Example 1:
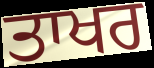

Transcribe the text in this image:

ਤਾਖਰ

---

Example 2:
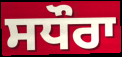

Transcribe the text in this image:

ਸਧੌਰਾ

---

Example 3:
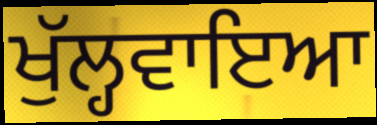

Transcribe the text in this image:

ਖੁੱਲ੍ਹਵਾਇਆ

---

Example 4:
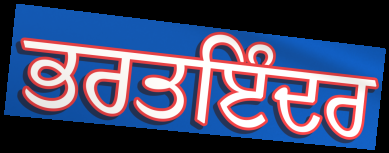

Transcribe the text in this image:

ਭਰਤਇੰਦਰ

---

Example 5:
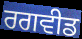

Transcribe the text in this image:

ਰਗਵੀਡ